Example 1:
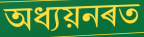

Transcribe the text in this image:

অধ্যয়নৰত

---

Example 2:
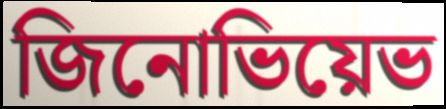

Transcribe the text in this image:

জিনোভিয়েভ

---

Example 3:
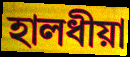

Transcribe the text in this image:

হালধীয়া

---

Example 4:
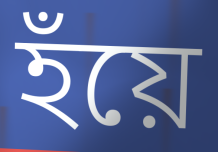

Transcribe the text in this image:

হঁয়ে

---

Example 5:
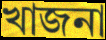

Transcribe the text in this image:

খাজনা